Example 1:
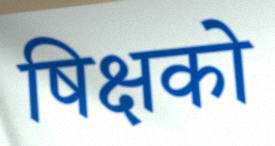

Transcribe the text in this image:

षिक्षको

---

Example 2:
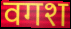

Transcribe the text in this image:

वगश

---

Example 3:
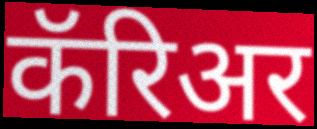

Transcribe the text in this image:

कॅरिअर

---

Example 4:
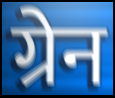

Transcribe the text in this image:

ग्रेन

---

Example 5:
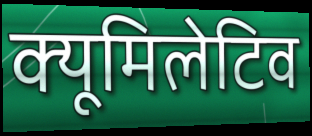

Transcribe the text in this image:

क्यूमिलेटिव